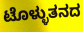
ಟೊಳ್ಳುತನದ